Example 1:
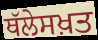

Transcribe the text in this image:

ਥੱਲੇਸਖ਼ਤ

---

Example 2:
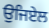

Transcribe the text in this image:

ਉਜਿਏਲ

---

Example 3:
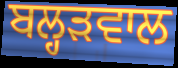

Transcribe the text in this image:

ਬਲ੍ਹੜਵਾਲ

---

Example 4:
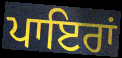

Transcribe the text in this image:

ਪਾਇਰਾਂ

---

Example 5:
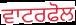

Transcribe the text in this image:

ਵਾਟਰਫੋਲ